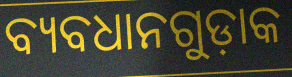
ବ୍ୟବଧାନଗୁଡ଼ାକ